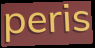
peris